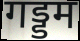
गड्डम